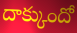
దాక్కుందో